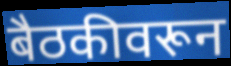
बैठकीवरून